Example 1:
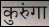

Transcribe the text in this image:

कुरुंगा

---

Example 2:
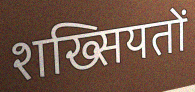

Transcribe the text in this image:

शख्सियतों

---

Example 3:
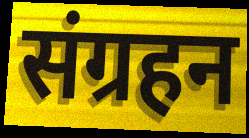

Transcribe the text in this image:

संग्रहन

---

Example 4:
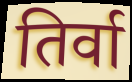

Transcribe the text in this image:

तिर्वा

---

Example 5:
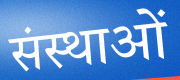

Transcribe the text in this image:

संस्‍थाओं